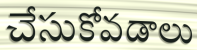
చేసుకోవడాలు